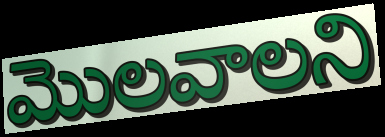
మొలవాలని